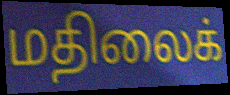
மதிலைக்